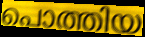
പൊത്തിയ